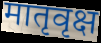
मातृवृक्ष